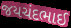
જયચંદભાઈ